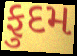
ફુદમ